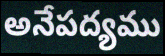
అనేపద్యము